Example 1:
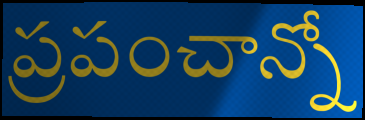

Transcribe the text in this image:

ప్రపంచాన్నో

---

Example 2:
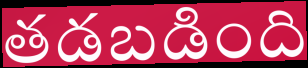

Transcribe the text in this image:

తడబడింది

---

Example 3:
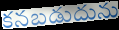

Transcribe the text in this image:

కనబడుదును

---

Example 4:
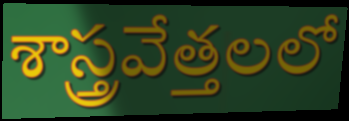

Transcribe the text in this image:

శాస్త్రవేత్తలలో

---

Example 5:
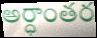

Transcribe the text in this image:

అర్ధాంతర